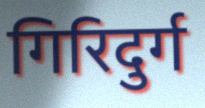
गिरिदुर्ग